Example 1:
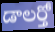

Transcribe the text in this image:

డాలర్తో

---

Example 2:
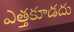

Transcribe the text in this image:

ఎత్తకూడదు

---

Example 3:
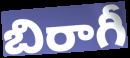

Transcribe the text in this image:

బిరాగీ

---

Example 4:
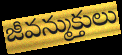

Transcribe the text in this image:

జీవన్ముక్తులు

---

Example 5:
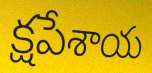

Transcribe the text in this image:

క్షపేశాయ